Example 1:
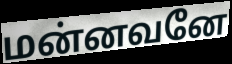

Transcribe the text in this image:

மன்னவனே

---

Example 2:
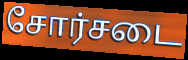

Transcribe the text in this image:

சோர்சடை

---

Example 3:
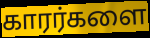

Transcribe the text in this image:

காரர்களை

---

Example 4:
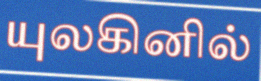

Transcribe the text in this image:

யுலகினில்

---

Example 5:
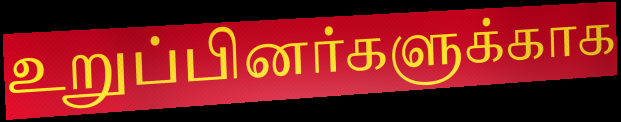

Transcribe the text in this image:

உறுப்பினர்களுக்காக